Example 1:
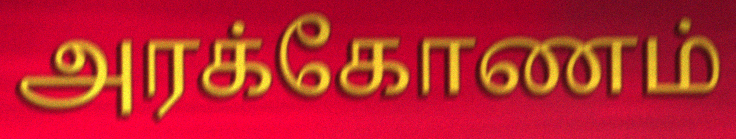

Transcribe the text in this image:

அரக்கோணம்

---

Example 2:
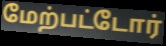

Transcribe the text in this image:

மேற்பட்டோர்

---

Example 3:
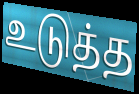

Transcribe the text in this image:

உடுத்த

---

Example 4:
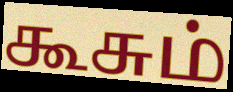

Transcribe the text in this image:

கூசும்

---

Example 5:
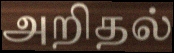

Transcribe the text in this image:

அறிதல்